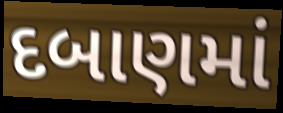
દબાણમાં